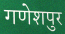
गणेशपुर